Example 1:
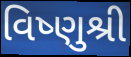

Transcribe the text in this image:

વિષ્ણુશ્રી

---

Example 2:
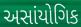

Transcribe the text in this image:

અસાંયોગિક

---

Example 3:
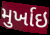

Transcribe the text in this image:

મુર્ખાઇ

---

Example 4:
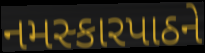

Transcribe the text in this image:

નમસ્કારપાઠને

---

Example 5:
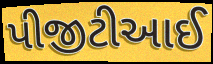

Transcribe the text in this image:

પીજીટીઆઈ